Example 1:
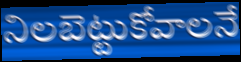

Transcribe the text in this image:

నిలబెట్టుకోవాలనే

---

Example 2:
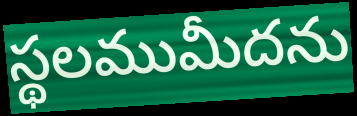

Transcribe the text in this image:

స్థలముమీదను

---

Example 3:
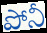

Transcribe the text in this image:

పోనీ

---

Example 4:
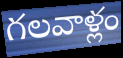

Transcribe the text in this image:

గలవాళ్లం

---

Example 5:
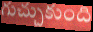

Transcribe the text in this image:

గుచ్చుకుంది